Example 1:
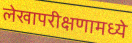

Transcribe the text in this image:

लेखापरीक्षणामध्ये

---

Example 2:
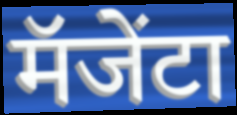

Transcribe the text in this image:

मॅजेंटा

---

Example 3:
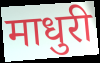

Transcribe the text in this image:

माधुरी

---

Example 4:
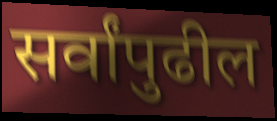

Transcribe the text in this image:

सर्वांपुढील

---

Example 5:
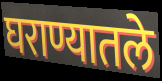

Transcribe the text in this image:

घराण्यातले